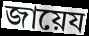
জায়েয